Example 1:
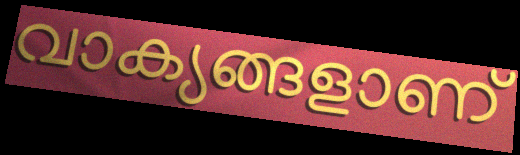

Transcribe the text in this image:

വാക്യങ്ങളാണ്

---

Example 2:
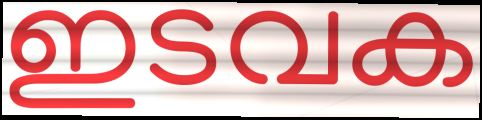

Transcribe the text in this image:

ഇടവക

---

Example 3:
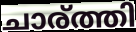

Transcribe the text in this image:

ചാര്ത്തി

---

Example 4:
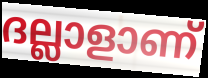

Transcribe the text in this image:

ദല്ലാളാണ്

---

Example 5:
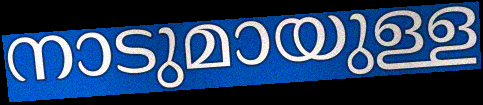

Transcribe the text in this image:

നാടുമായുള്ള